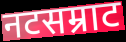
नटसम्राट